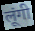
लूंगी